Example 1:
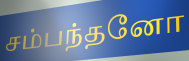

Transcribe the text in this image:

சம்பந்தனோ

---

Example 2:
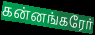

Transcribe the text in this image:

கன்னங்கரேர்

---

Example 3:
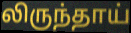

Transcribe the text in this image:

லிருந்தாய்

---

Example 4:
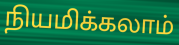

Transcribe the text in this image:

நியமிக்கலாம்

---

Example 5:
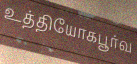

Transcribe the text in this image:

உத்தியோகபூர்வ